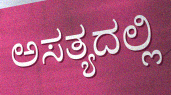
ಅಸತ್ಯದಲ್ಲಿ